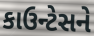
કાઉન્ટેસને